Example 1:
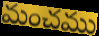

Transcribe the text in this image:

మంచము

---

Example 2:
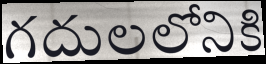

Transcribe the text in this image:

గదులలోనికి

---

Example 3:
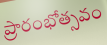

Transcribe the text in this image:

ప్రారంభోత్సవం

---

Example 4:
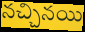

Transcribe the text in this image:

నచ్చినయి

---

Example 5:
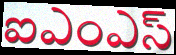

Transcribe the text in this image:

ఐఎంఎస్